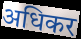
अधिकर